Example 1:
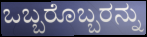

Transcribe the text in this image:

ಒಬ್ಬರೊಬ್ಬರನ್ನು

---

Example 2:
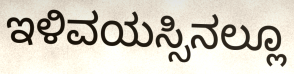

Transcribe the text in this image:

ಇಳಿವಯಸ್ಸಿನಲ್ಲೂ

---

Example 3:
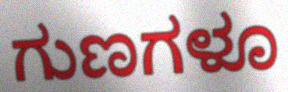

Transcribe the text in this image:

ಗುಣಗಳೂ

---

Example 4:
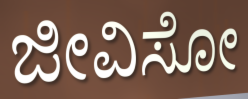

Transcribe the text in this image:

ಜೀವಿಸೋ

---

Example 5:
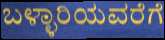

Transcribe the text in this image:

ಬಳ್ಳಾರಿಯವರೆಗೆ